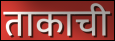
ताकाची